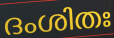
ദംശിതഃ